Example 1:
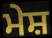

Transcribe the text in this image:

ਮੇਸ਼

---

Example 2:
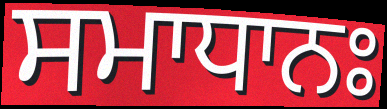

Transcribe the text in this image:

ਸਮਾਧਾਨਃ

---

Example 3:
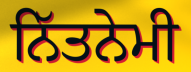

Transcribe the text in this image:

ਨਿੱਤਨੇਮੀ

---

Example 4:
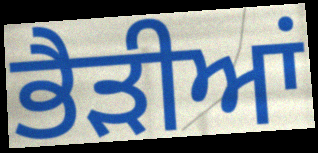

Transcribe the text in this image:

ਭੈੜੀਆਂ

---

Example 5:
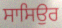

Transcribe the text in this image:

ਸਾਸਿਉਰ